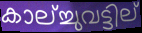
കാല്ച്ചുവട്ടില്